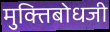
मुक्तिबोधजी